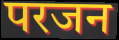
परजन